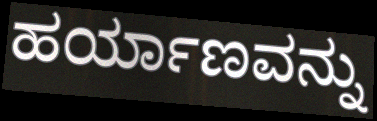
ಹರ್ಯಾಣವನ್ನು